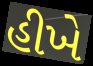
હીખે